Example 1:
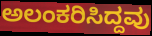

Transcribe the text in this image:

ಅಲಂಕರಿಸಿದ್ದವು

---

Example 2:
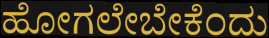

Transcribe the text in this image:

ಹೋಗಲೇಬೇಕೆಂದು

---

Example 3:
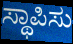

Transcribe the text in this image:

ಸ್ಥಾಪಿಸು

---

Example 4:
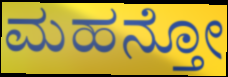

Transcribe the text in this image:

ಮಹನ್ತೋ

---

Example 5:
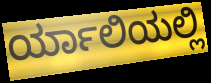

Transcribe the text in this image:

ರ್ಯಾಲಿಯಲ್ಲಿ